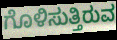
ಗೊಳಿಸುತ್ತಿರುವ